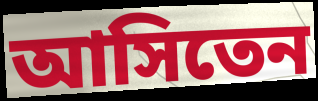
আসিতেন